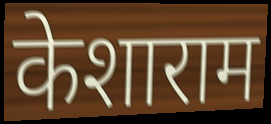
केशाराम